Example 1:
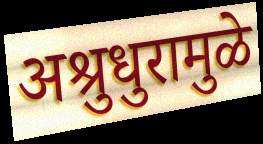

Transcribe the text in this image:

अश्रुधुरामुळे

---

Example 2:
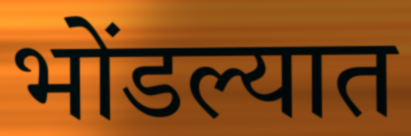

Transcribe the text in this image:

भोंडल्यात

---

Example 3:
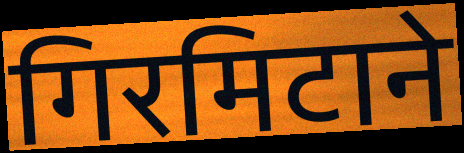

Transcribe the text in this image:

गिरमिटाने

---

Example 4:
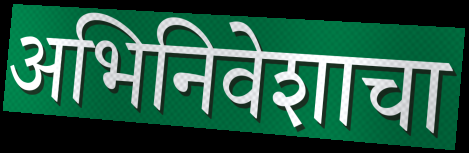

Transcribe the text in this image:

अभिनिवेशाचा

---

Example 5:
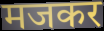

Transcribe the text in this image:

मजकर